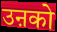
उऩको